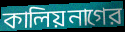
কালিয়নাগের